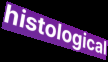
histological